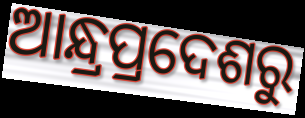
ଆନ୍ଧ୍ରପ୍ରଦେଶରୁ